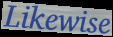
Likewise